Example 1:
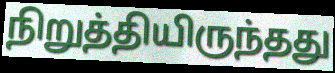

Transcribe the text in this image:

நிறுத்தியிருந்தது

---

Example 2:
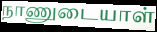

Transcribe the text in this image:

நாணுடையாள்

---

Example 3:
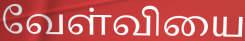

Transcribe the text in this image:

வேள்வியை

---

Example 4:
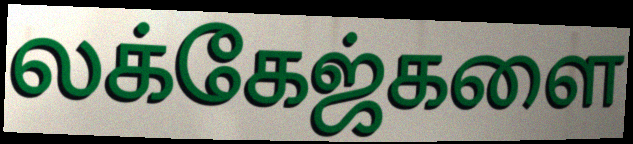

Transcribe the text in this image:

லக்கேஜ்களை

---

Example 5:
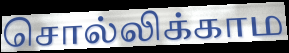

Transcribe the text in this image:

சொல்லிக்காம